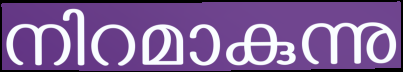
നിറമാകുന്നു